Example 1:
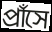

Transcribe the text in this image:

প্রাঁসে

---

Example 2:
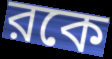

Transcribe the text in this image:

রকে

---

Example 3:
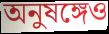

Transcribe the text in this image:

অনুষঙ্গেও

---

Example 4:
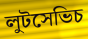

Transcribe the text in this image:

লুটসেভিচ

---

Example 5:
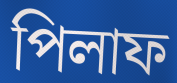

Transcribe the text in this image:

পিলাফ